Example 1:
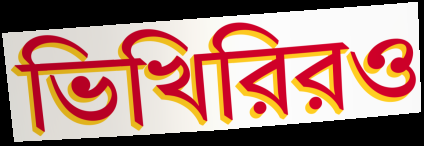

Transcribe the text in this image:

ভিখিরিরও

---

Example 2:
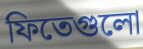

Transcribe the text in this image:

ফিতেগুলো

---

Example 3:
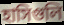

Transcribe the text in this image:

হাসিগুলি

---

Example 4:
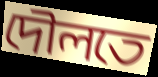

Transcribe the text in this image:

দৌলতে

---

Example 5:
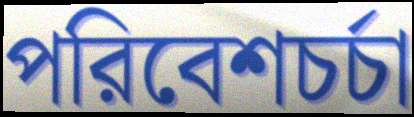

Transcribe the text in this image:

পরিবেশচর্চা